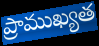
ప్రాముఖ్యత